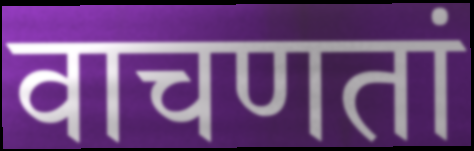
वाचणतां